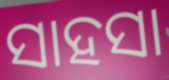
ସାହସା